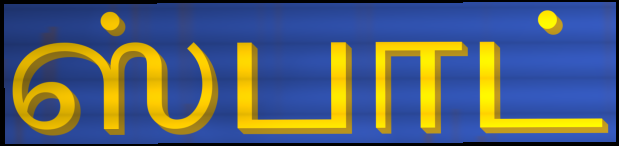
ஸ்பாட்